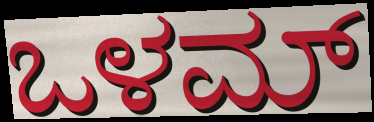
ಒಳಮ್